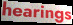
hearings